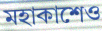
মহাকাশেও